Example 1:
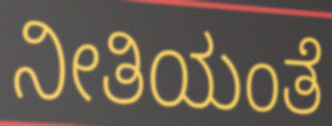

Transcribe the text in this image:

ನೀತಿಯಂತೆ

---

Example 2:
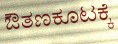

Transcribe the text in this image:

ಔತಣಕೂಟಕ್ಕೆ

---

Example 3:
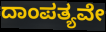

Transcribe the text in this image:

ದಾಂಪತ್ಯವೇ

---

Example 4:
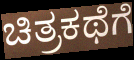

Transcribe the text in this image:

ಚಿತ್ರಕಥೆಗೆ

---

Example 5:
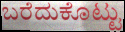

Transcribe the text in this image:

ಬರೆದುಕೊಟ್ಟು